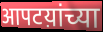
आपटय़ांच्या